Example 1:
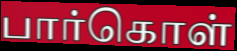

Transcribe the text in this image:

பார்கொள்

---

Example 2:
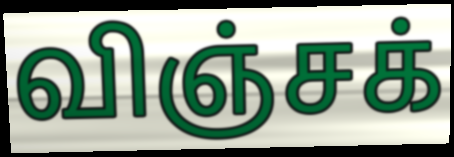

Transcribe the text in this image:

விஞ்சக்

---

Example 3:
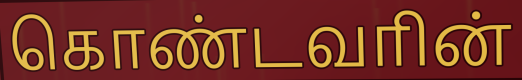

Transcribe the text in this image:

கொண்டவரின்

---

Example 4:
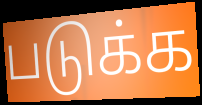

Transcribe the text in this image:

படுக்க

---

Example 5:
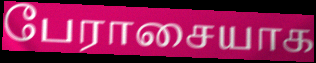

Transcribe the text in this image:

பேராசையாக